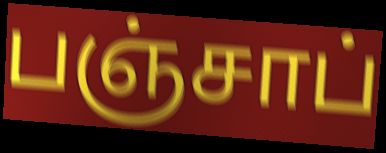
பஞ்சாப்